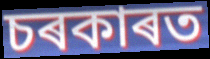
চৰকাৰত